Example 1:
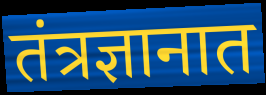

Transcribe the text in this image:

तंत्रज्ञानात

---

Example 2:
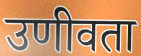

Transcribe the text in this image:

उणीवता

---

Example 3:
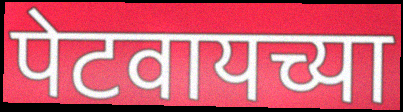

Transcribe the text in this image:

पेटवायच्या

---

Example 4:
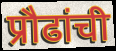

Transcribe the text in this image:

प्रौढांची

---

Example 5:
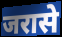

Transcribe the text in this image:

जरासे